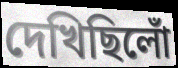
দেখিছিলোঁ